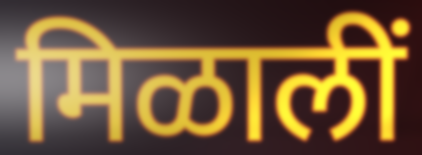
मिळालीं